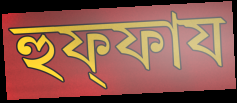
হুফ্ফায